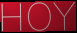
HOY